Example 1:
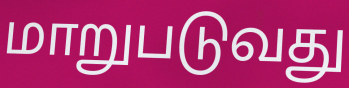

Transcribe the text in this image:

மாறுபடுவது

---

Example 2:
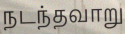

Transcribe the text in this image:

நடந்தவாறு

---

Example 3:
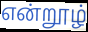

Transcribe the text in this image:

என்றூழ்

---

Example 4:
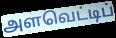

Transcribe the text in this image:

அளவெட்டிப்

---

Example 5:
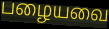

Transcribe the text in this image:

பழையவை